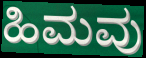
ಹಿಮವು